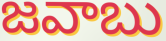
జవాబు